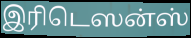
இரிடெஸன்ஸ்